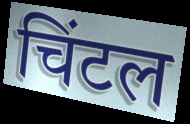
चिंटल